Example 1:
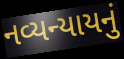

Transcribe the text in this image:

નવ્યન્યાયનું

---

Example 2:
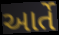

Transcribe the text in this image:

આર્તે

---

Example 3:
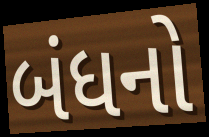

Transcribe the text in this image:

બંધનો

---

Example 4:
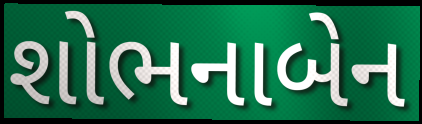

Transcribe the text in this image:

શોભનાબેન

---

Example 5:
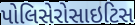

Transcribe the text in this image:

પોલિસેરોસાઇટિસ